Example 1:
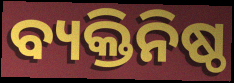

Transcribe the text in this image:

ବ୍ୟକ୍ତିନିଷ୍ଠ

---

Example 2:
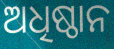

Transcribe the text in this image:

ଅଧିଷ୍ଠାନ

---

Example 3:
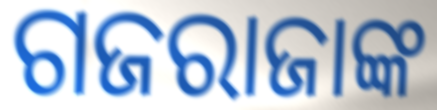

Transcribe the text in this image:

ଗଜରାଜାଙ୍କ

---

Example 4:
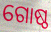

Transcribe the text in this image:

ଗୋଷ୍ଠ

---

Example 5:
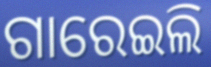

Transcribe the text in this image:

ଗାରେଇଲି